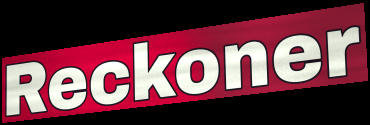
Reckoner